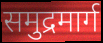
समुद्रमार्ग